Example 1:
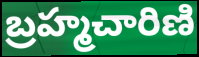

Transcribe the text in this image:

బ్రహ్మచారిణి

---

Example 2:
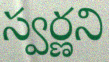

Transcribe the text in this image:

స్వర్ణని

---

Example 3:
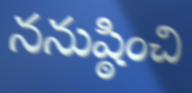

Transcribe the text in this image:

ననుష్ఠించి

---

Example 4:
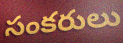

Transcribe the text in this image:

సంకరులు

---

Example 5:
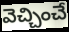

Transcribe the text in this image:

వెచ్చించే